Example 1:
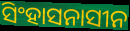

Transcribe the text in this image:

ସିଂହାସନାସୀନ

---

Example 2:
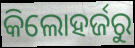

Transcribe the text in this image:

କିଲୋହର୍ଜରୁ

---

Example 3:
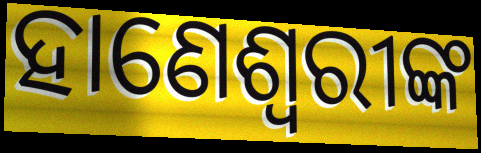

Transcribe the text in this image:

ହାଣେଶ୍ୱରୀଙ୍କ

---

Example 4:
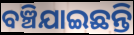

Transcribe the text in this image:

ବଞ୍ଚିଯାଇଛନ୍ତି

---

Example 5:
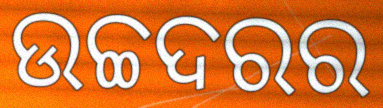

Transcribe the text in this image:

ଉଚ୍ଚଦରର